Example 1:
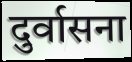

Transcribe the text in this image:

दुर्वासना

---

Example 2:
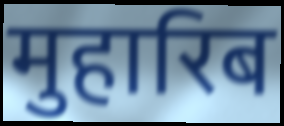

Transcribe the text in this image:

मुहारिब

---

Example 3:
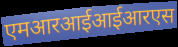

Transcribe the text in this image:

एमआरआईआईआरएस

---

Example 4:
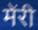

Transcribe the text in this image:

मेंरी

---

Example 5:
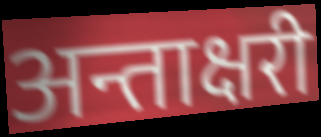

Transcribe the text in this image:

अन्ताक्षरी